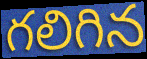
గలిగిన